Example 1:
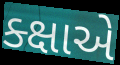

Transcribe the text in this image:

ક્ક્ષાએ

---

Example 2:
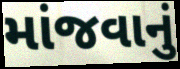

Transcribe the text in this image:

માંજવાનું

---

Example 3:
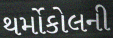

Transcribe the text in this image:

થર્મોકોલની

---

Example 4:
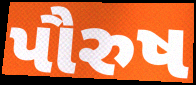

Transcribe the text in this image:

પૌરુષ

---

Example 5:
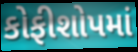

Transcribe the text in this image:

કોફીશોપમાં